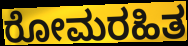
ರೋಮರಹಿತ